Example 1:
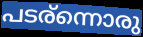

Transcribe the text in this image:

പടര്ന്നൊരു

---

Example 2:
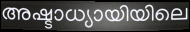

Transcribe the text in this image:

അഷ്ടാധ്യായിയിലെ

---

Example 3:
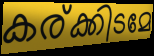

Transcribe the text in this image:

കര്ക്കിടമേ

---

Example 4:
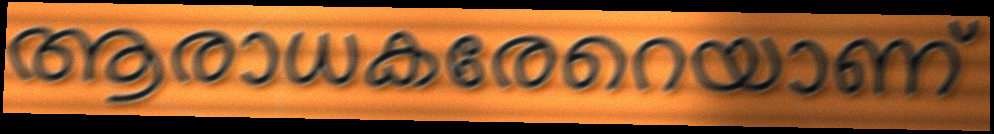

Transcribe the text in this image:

ആരാധകരേറെയാണ്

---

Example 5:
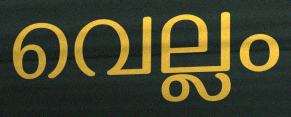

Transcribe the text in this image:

വെല്ലം